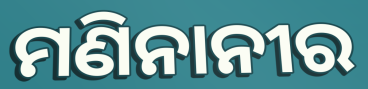
ମଣିନାନୀର